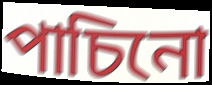
পাচিনো